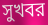
সুখবর